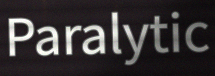
Paralytic